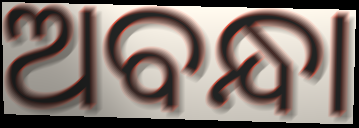
ଅବନ୍ଧା